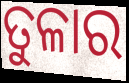
ତୁଳାର